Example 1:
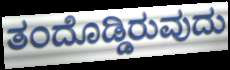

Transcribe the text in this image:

ತಂದೊಡ್ಡಿರುವುದು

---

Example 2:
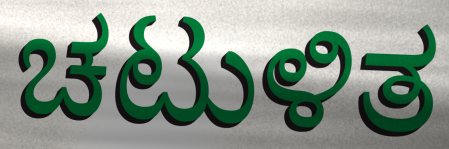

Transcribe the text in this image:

ಚಟುಳಿತ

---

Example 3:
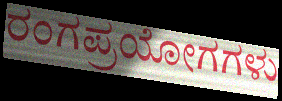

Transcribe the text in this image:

ರಂಗಪ್ರಯೋಗಗಳು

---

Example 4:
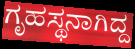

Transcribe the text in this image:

ಗೃಹಸ್ಥನಾಗಿದ್ದ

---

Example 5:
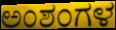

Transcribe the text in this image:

ಅಂಶಂಗಳ